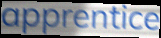
apprentice